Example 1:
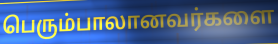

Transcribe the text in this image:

பெரும்பாலானவர்களை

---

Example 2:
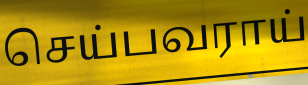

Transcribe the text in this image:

செய்பவராய்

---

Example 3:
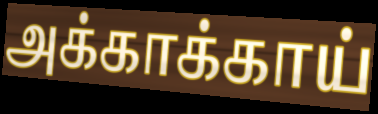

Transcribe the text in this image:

அக்காக்காய்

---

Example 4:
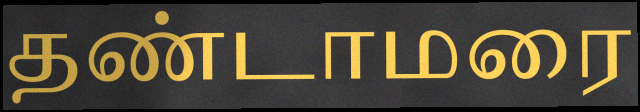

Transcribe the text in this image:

தண்டாமரை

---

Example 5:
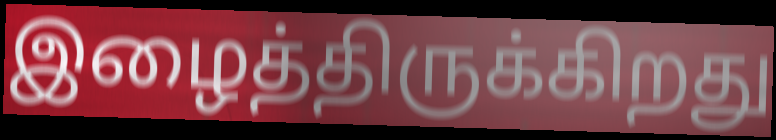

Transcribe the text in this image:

இழைத்திருக்கிறது